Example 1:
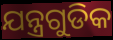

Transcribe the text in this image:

ଯନ୍ତ୍ରଗୁଡିକ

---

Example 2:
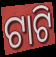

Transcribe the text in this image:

ଟାଟି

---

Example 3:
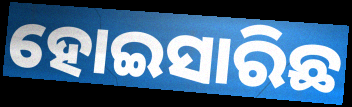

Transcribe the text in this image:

ହୋଇସାରିଛ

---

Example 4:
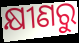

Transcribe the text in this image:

କ୍ଷୀଣରୁ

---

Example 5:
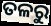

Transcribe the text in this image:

ତଳରୁ